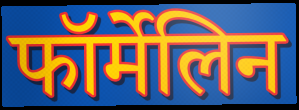
फॉर्मेलिन